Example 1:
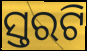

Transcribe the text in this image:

ସ୍ତରଟି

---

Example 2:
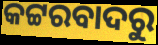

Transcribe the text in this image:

କଟ୍ଟରବାଦରୁ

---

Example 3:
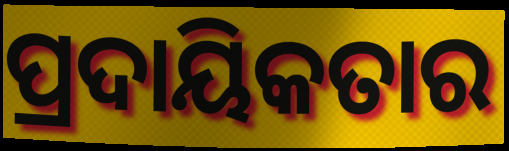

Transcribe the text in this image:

ପ୍ରଦାୟିକତାର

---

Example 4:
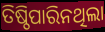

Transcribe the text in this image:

ତିଷ୍ଠିପାରିନଥିଲା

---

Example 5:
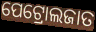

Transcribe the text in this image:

ପେଟ୍ରୋଲଜାତ